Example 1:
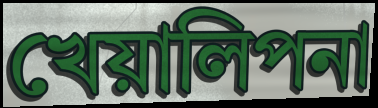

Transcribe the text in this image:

খেয়ালিপনা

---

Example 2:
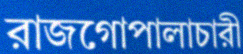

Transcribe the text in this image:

রাজগোপালাচারী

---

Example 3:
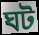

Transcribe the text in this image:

ঘট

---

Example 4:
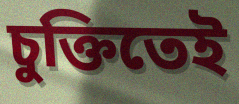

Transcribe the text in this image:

চুক্তিতেই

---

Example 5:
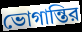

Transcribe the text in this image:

ভোগান্তির